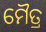
ମୈତ୍ର